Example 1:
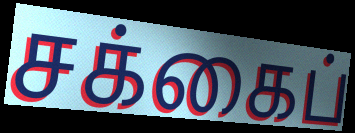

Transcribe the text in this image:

சக்கைப்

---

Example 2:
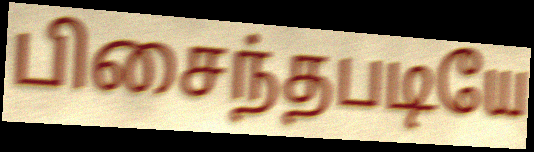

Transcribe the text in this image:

பிசைந்தபடியே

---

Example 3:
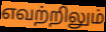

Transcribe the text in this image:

எவற்றிலும்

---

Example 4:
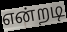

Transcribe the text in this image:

என்றடி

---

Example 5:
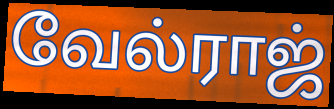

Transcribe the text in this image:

வேல்ராஜ்